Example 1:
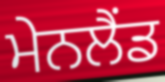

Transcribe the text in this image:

ਮੇਨਲੈਂਡ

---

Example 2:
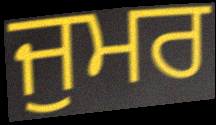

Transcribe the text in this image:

ਜੁਮਰ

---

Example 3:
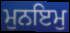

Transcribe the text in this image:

ਮੁਨਇਮੁ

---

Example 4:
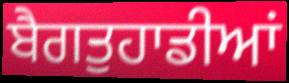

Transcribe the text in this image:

ਬੈਗਤੁਹਾਡੀਆਂ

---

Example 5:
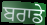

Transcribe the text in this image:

ਬਰਾਡੇ